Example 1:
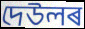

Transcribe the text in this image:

দেউলৰ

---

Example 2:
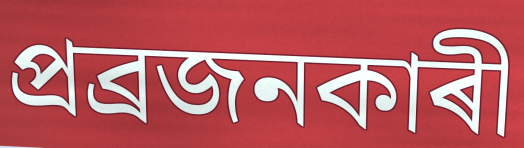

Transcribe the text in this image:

প্ৰব্ৰজনকাৰী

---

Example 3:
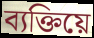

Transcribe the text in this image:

ব্যক্তিয়ে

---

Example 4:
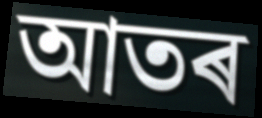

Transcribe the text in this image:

আতৰ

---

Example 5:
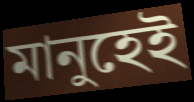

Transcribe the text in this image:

মানুহেই